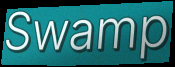
Swamp